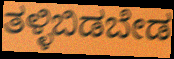
ತಳ್ಳಿಬಿಡಬೇಡ